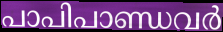
പാപിപാണ്ഡവർ